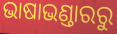
ଭାଷାଭଣ୍ଡାରରୁ